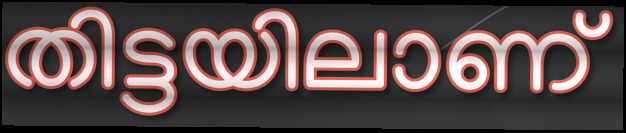
തിട്ടയിലാണ്